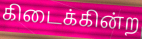
கிடைக்கின்ற